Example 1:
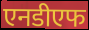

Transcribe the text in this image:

एनडीएफ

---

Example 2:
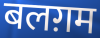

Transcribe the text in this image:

बलग़म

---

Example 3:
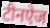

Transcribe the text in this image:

टीनऐज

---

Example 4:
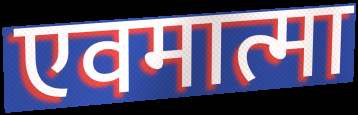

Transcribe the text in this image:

एवमात्मा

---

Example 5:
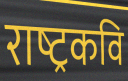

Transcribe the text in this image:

राष्ट्रकवि